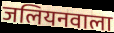
जलियनवाला